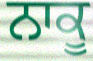
ਨਾਕੂ